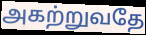
அகற்றுவதே